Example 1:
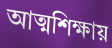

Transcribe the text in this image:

আত্মশিক্ষায়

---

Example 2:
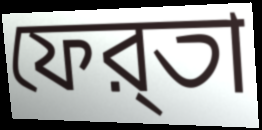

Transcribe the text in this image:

ফের্‌তা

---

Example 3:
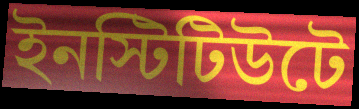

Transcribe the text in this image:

ইনস্টিটিউটে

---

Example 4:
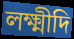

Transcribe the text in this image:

লক্ষ্মীদি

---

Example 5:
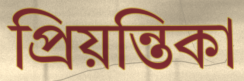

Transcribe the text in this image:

প্রিয়ন্তিকা